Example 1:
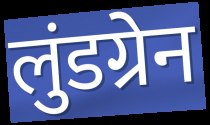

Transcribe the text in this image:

लुंडग्रेन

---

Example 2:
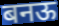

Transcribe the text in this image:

बनऊ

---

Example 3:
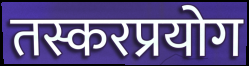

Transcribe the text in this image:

तस्करप्रयोग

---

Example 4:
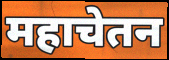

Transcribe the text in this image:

महाचेतन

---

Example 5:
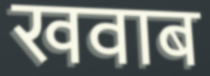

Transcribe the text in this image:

खवाब